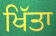
ਖਿੱਤਾ